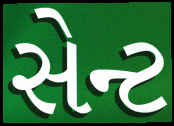
સેન્ટ